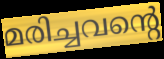
മരിച്ചവന്റെ